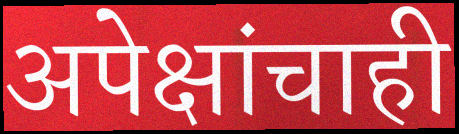
अपेक्षांचाही